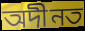
অদীনত